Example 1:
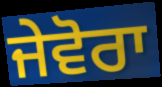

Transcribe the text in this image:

ਜੇਵੋਰਾ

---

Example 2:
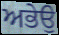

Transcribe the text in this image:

ਅਭੇਉ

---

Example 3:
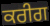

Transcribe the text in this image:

ਕਰੀਗ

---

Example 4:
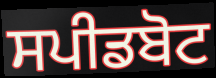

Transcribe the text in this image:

ਸਪੀਡਬੋਟ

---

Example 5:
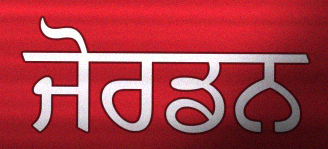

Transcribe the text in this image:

ਜੋਰਡਨ